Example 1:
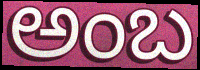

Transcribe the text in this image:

ಅಂಬ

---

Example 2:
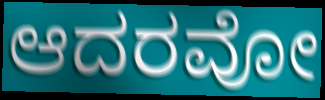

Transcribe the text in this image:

ಆದರವೋ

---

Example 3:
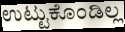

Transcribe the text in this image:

ಉಟ್ಟುಕೊಂಡಿಲ್ಲ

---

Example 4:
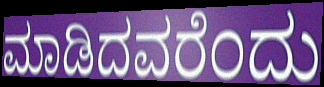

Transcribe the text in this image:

ಮಾಡಿದವರೆಂದು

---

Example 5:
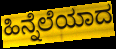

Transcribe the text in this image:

ಹಿನ್ನೆಲೆಯಾದ